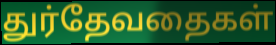
துர்தேவதைகள்